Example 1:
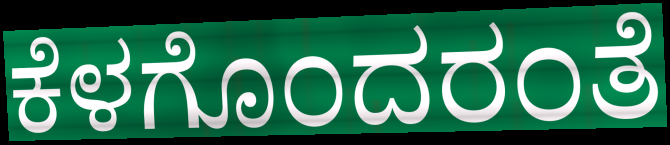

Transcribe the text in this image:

ಕೆಳಗೊಂದರಂತೆ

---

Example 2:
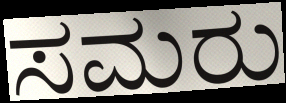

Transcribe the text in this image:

ಸಮರು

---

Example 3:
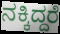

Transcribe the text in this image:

ನಕ್ಕಿದ್ದರೆ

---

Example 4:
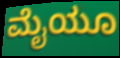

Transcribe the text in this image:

ಮೈಯೂ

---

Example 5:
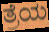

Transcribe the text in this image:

ತ್ರೆಯ